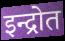
इन्द्रोत